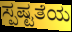
ಸ್ಪಷ್ಟತೆಯ